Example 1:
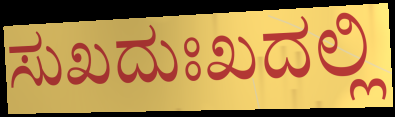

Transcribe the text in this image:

ಸುಖದುಃಖದಲ್ಲಿ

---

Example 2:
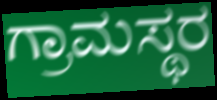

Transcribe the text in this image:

ಗ್ರಾಮಸ್ಥರ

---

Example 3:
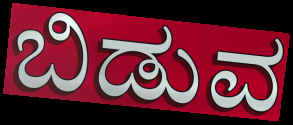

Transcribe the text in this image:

ಬಿಡುವ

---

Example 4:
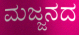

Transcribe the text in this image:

ಮಜ್ಜನದ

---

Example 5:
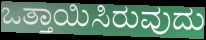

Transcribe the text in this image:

ಒತ್ತಾಯಿಸಿರುವುದು